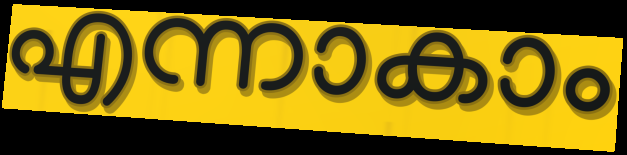
എന്നാകാം